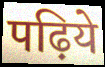
पढ़िये